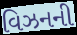
વિઝનની